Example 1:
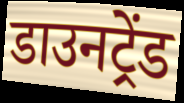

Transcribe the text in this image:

डाउनट्रेंड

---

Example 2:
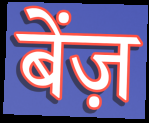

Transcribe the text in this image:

बेंज़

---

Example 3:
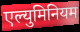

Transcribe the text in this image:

एल्युमिनियम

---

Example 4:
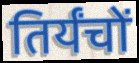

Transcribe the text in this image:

तिर्यंचों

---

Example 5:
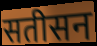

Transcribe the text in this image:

सतीसन